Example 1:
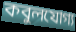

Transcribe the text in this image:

কবুলযোগ্য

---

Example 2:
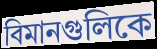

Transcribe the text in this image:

বিমানগুলিকে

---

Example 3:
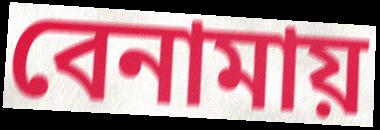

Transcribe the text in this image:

বেনামায়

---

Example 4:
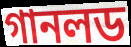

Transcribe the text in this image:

গানলড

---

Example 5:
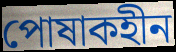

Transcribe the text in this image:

পোষাকহীন